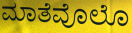
ಮಾತೆವೊಲೊ